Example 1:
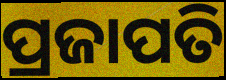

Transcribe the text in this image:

ପ୍ରଜାପତି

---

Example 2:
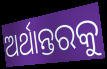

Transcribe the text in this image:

ଅର୍ଥାନ୍ତରକୁ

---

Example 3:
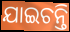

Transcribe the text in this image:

ଯାଇଚନ୍ତି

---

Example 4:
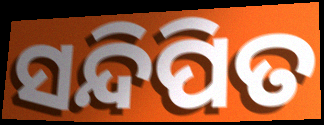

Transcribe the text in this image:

ସନ୍ଦିପିତ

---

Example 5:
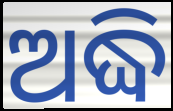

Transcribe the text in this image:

ଅଦ୍ଧି